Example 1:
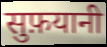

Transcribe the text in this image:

सुफ़यानी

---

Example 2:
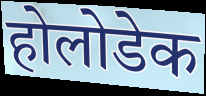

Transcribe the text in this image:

होलोडेक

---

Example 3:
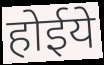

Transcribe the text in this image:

होईये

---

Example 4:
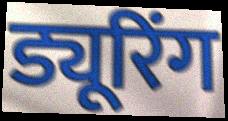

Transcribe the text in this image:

ड्यूरिंग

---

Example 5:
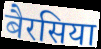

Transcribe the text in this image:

बैरसिया